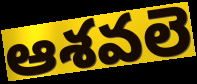
ఆశవలె